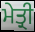
ਮੇਤ੍ਰੀ